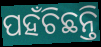
ପହଁଚିଛନ୍ତି